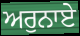
ਅਰੁਨਾਏ